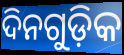
ଦିନଗୁଡ଼ିକ